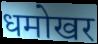
धमोखर